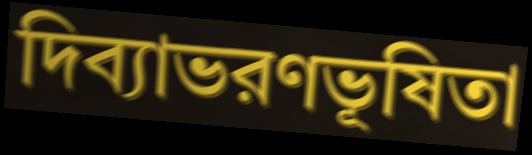
দিব্যাভরণভূষিতা